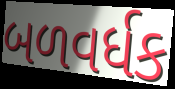
બળવર્ધક